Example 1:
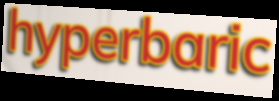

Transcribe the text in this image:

hyperbaric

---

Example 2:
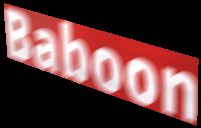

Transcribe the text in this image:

Baboon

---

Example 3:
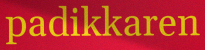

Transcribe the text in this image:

padikkaren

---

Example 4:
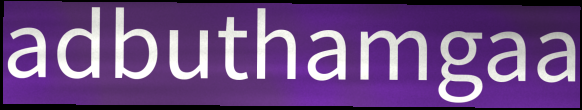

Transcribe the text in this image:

adbuthamgaa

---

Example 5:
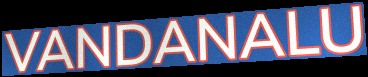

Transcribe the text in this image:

VANDANALU